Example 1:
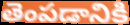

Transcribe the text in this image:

తెంపడానికి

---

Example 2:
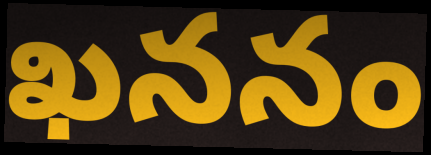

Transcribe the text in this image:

ఖననం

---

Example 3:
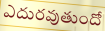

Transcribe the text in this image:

ఎదురవుతుందో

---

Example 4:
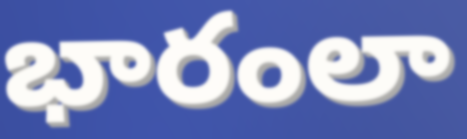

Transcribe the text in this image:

భారంలా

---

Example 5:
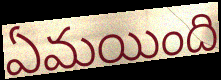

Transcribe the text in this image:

ఏమయింది